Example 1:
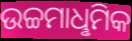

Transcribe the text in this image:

ଉଚ୍ଚମାଧୢମିକ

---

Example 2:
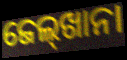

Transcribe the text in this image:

ଜେଲ୍‌ଖାନା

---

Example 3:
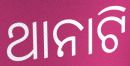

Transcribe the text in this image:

ଥାନାଟି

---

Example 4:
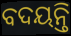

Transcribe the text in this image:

ବଦୟନ୍ତି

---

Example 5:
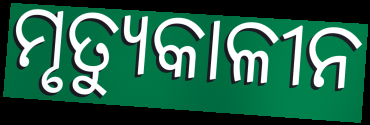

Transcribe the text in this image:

ମୃତ୍ୟୁକାଳୀନ